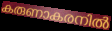
കരുണാകരനിൽ